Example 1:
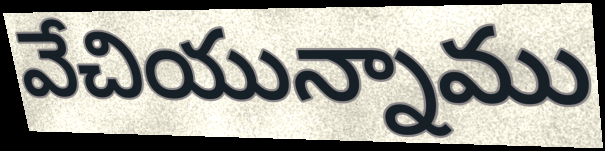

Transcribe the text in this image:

వేచియున్నాము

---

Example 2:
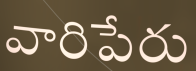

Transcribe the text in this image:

వారిపేరు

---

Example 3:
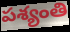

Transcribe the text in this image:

పశ్యంతి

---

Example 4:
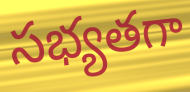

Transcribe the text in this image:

సభ్యతగా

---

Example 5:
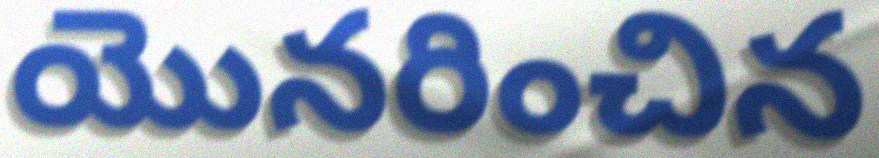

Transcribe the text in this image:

యొనరించిన